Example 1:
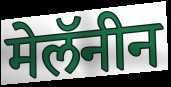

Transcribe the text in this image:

मेलॅनीन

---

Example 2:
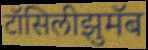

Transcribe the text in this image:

टॉसिलीझुमॅब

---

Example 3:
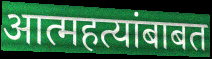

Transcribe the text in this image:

आत्महत्यांबाबत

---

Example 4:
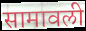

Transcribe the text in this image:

सामावली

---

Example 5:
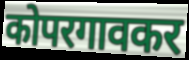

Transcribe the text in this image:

कोपरगावकर